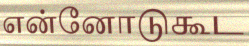
என்னோடுகூட